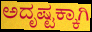
ಅದೃಷ್ಟಕ್ಕಾಗಿ